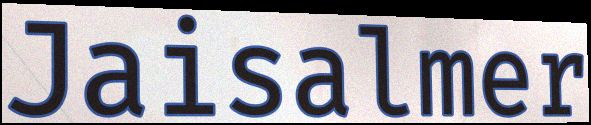
Jaisalmer